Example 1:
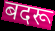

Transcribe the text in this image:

बदरू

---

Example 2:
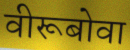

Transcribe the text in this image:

वीरूबोवा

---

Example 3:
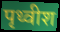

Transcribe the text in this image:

पृथ्वीश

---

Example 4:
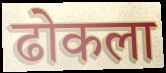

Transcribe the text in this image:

ढोकला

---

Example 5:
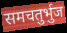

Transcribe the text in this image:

समचतुर्भुज